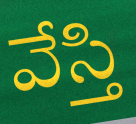
వేస్తి